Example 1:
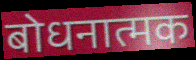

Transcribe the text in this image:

बोधनात्मक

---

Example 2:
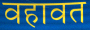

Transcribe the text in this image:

वहावत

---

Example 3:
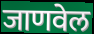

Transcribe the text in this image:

जाणवेल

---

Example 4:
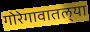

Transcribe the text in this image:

गोरेगावातल्या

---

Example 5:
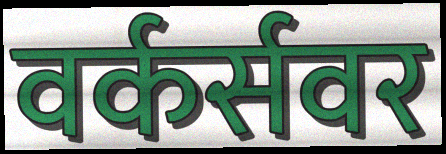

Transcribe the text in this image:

वर्कर्सवर